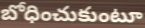
బోధించుకుంటూ